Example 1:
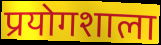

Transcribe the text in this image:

प्रयोगशाला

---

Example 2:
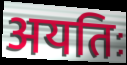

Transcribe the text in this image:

अयतिः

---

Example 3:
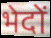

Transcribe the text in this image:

भेदों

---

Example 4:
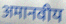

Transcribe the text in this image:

अमानवीय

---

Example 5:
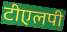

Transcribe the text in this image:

टीएलपी